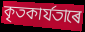
কৃতকাৰ্যতাৰে